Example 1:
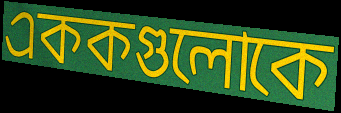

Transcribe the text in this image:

এককগুলোকে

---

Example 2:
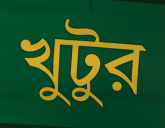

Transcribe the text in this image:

খুটুর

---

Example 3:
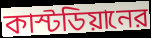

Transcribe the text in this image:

কাস্টডিয়ানের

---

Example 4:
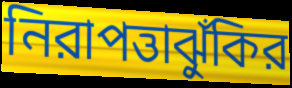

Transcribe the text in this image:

নিরাপত্তাঝুঁকির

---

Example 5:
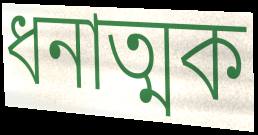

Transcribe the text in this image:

ধনাত্মক